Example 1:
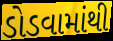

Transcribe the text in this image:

ડોડવામાંથી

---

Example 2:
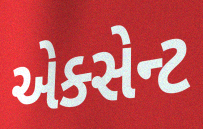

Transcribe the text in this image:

એક્સેન્ટ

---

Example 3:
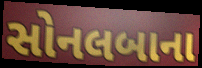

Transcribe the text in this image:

સોનલબાના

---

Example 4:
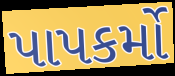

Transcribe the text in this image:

પાપકર્મો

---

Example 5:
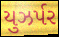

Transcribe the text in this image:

યુઝર્પર